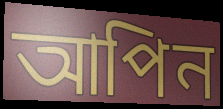
আপিন